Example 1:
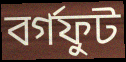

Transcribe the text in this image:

বৰ্গফুট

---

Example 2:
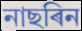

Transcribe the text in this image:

নাছৰিন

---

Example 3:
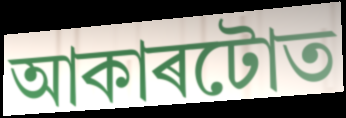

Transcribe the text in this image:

আকাৰটোত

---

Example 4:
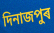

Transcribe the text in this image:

দিনাজপুৰ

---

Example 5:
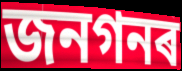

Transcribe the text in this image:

জনগনৰ